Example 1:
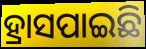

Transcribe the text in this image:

ହ୍ରାସପାଇଛି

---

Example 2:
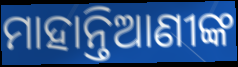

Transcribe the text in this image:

ମାହାନ୍ତିଆଣୀଙ୍କ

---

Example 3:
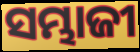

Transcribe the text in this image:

ସମ୍ଭାଜୀ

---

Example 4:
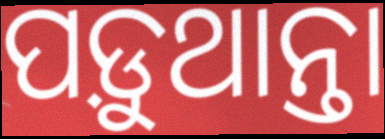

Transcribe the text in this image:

ପଡ଼ୁଥାନ୍ତା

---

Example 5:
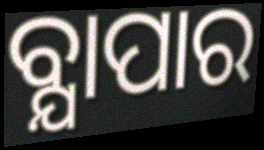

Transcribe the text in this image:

ବ୍ଯାପାର